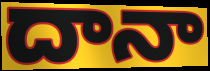
దానా